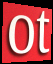
ot